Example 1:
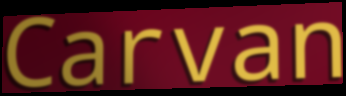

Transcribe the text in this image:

Carvan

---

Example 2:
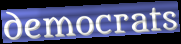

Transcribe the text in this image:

democrats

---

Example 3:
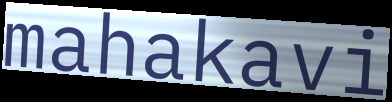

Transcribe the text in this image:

mahakavi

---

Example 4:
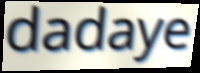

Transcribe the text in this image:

dadaye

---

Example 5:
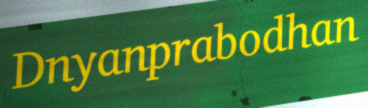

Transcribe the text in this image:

Dnyanprabodhan